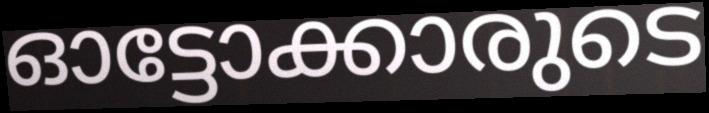
ഓട്ടോക്കാരുടെ